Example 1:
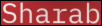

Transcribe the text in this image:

Sharab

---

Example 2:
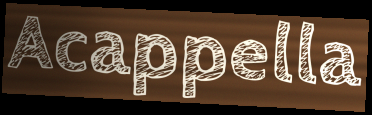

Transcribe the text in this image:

Acappella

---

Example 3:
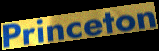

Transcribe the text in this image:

Princeton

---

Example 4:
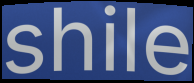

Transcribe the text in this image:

shile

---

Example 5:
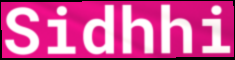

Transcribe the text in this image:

Sidhhi